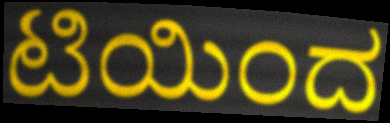
ಟಿಯಿಂದ